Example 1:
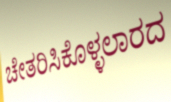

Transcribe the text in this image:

ಚೇತರಿಸಿಕೊಳ್ಳಲಾರದ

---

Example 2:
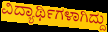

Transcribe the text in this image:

ವಿದ್ಯಾರ್ಥಿಗಳಾಗಿದ್ದು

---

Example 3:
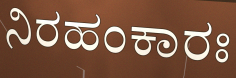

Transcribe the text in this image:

ನಿರಹಂಕಾರಃ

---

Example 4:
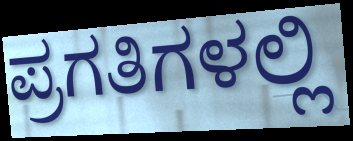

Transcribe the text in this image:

ಪ್ರಗತಿಗಳಲ್ಲಿ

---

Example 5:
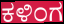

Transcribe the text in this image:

ಕಳಿಂಗ